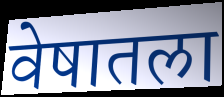
वेषातला